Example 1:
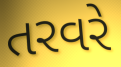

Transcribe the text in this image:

તરવરે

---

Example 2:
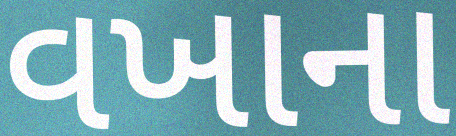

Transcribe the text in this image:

વખાના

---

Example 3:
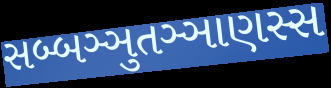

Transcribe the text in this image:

સબ્બઞ્ઞુતઞ્ઞાણસ્સ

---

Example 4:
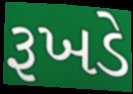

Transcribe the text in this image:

રૂખડે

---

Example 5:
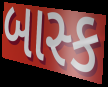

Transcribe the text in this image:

બાસ્ક